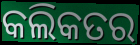
କଲିକତର